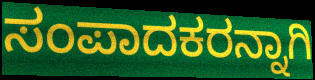
ಸಂಪಾದಕರನ್ನಾಗಿ